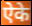
ऐके